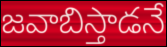
జవాబిస్తాడనే